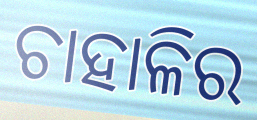
ଚାହାଳିର